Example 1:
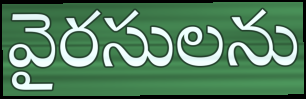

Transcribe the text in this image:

వైరసులను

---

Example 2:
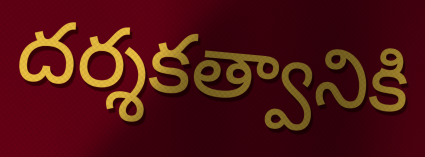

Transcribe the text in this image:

దర్శకత్వానికి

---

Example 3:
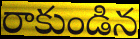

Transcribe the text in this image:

రాకుండిన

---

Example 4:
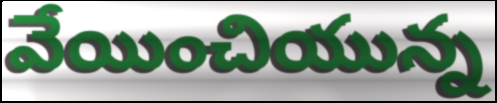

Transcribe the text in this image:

వేయించియున్న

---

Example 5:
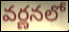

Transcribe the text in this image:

వర్ణనలో